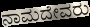
ನಾಮದೇವರು